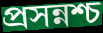
প্রসন্নশ্চ